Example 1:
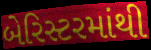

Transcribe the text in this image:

બેરિસ્ટરમાંથી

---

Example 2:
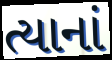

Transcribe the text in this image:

ત્યાનાં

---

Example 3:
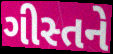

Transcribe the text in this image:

ગીસ્તને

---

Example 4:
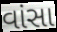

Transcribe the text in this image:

વાંસા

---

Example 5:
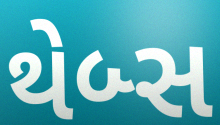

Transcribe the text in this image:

થેબ્સ